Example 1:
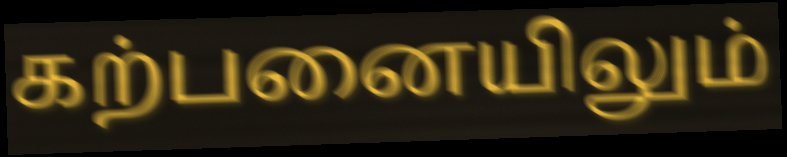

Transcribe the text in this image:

கற்பனையிலும்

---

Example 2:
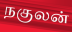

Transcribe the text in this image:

நகுலன்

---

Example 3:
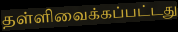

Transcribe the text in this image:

தள்ளிவைக்கப்பட்டது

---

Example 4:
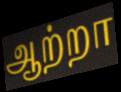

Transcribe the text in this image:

ஆற்றா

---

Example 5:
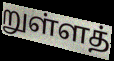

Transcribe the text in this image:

றுள்ளத்